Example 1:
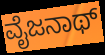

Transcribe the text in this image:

ವೈಜನಾಥ್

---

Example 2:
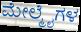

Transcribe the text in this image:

ಮೇಲ್ಮೈಗಳ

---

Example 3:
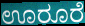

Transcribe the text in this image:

ಊರೂರೆ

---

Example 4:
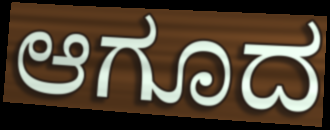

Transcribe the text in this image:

ಆಗೂದ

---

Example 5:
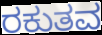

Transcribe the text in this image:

ರಕುತವ